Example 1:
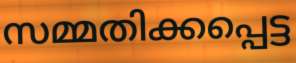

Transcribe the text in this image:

സമ്മതിക്കപ്പെട്ട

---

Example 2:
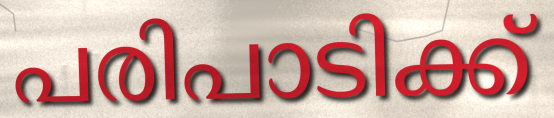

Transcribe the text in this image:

പരിപാടിക്ക്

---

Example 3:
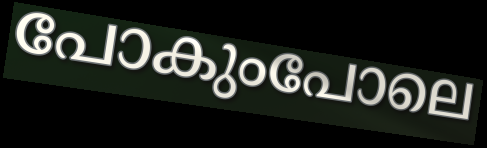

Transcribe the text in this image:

പോകുംപോലെ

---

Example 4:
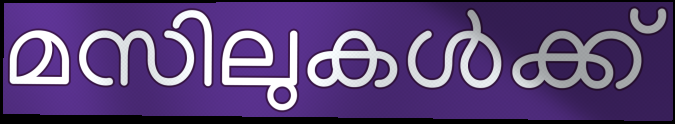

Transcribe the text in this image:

മസിലുകൾക്ക്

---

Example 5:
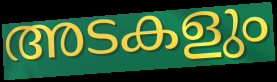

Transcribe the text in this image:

അടകളും